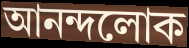
আনন্দলোক